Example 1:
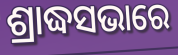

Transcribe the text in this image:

ଶ୍ରାଦ୍ଧସଭାରେ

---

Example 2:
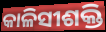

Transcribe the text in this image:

କାଳିସୀଶକ୍ତି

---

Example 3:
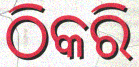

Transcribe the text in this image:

ଠିକରି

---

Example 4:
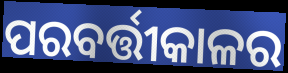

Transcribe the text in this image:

ପରବର୍ତ୍ତୀକାଳର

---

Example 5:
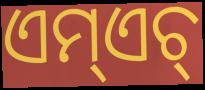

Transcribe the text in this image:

ଏମ୍ଏଚ୍